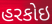
હરકોઇ